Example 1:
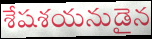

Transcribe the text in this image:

శేషశయనుడైన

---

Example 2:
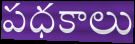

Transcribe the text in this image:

పధకాలు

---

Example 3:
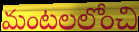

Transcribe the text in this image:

మంటలలోంచి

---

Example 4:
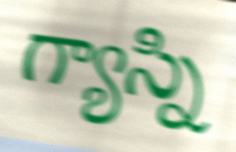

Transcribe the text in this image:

గ్యాస్ని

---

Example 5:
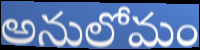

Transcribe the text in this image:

అనులోమం